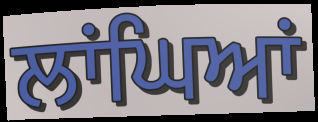
ਲਾਂਘਿਆਂ